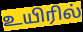
உயிரில்